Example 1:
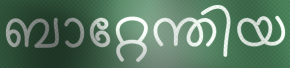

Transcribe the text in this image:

ബാറ്റേന്തിയ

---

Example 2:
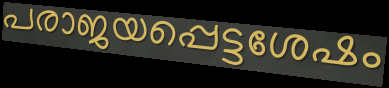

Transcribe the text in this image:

പരാജയപ്പെട്ടശേഷം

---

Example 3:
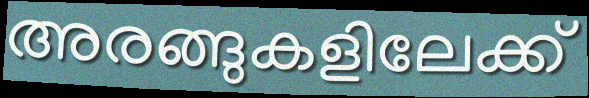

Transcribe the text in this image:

അരങ്ങുകളിലേക്ക്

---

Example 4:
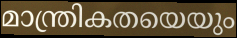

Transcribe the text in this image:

മാന്ത്രികതയെയും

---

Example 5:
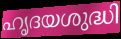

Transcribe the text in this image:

ഹൃദയശുദ്ധി